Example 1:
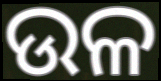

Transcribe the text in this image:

ଉଳ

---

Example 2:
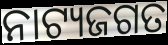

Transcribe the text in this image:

ନାଟ୍ୟଜଗତ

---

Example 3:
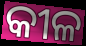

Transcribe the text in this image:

କୀଳ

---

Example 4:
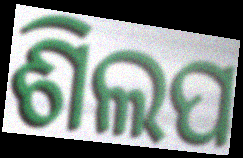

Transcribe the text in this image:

ଶିଲପ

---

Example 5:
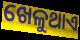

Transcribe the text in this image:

ଖେଳୁଥାଏ